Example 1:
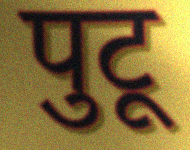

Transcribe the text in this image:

पुटू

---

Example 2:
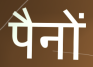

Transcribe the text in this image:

पैनों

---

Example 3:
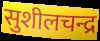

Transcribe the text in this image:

सुशीलचन्द्र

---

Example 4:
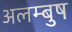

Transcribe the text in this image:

अलम्बुष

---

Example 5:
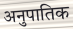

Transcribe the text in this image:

अनुपातिक